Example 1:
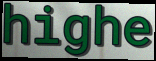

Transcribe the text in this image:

highe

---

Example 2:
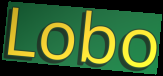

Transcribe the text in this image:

Lobo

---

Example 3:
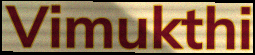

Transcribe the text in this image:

Vimukthi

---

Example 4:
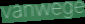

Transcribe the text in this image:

vanwege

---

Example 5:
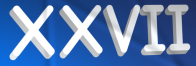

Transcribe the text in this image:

XXVII